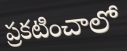
ప్రకటించాలో